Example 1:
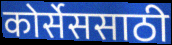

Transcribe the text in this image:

कोर्सेससाठी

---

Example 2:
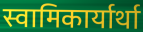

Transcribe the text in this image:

स्वामिकार्यार्था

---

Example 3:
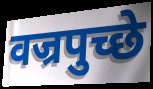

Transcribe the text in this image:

वज्रपुच्छे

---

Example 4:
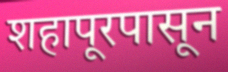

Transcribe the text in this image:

शहापूरपासून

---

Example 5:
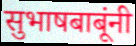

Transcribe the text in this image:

सुभाषबाबूंनी